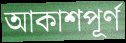
আকাশপূর্ণ